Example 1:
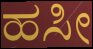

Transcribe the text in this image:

ಹಸೀ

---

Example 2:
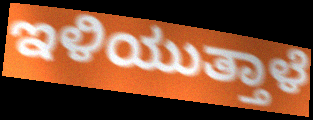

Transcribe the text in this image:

ಇಳಿಯುತ್ತಾಳೆ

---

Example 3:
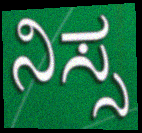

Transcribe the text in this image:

ನಿಸ್ಸ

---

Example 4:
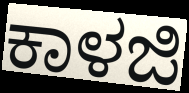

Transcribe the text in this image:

ಕಾಳಜಿ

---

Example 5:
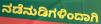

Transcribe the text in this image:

ನಡೆನುಡಿಗಳಿಂದಾಗಿ